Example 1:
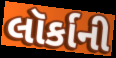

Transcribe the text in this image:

લૉર્કાની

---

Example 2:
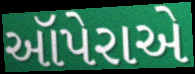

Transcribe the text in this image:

ઑપેરાએ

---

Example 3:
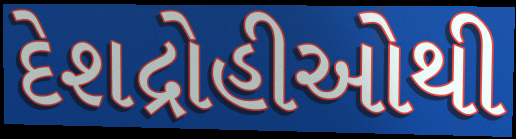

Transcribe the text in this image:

દેશદ્રોહીઓથી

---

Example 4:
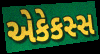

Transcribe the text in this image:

એકેકસ્સ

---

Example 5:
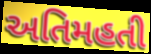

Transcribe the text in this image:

અતિમહતી